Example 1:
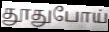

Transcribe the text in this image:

தூதுபோய்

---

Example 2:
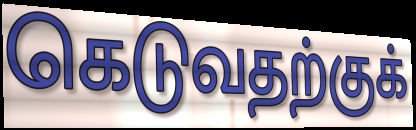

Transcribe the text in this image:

கெடுவதற்குக்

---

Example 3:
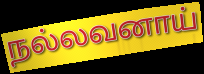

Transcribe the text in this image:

நல்லவனாய்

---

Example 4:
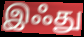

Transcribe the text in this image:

இஃது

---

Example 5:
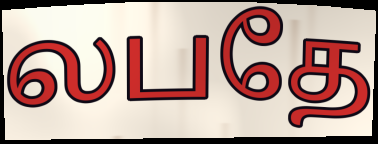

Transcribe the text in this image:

லபதே